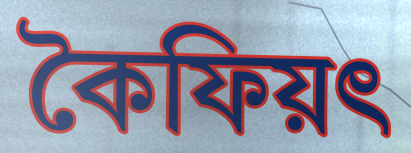
কৈফিয়ৎ